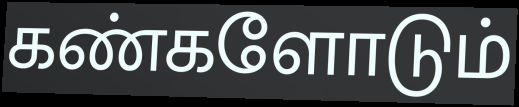
கண்களோடும்